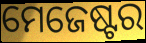
ମେଜେଷ୍ଟର